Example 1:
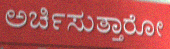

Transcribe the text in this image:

ಅರ್ಚಿಸುತ್ತಾರೋ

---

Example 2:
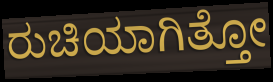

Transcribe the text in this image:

ರುಚಿಯಾಗಿತ್ತೋ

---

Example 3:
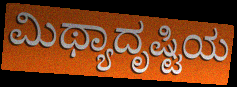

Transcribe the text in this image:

ಮಿಥ್ಯಾದೃಷ್ಟಿಯ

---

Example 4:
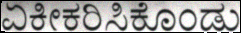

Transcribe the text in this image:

ಏಕೀಕರಿಸಿಕೊಂಡು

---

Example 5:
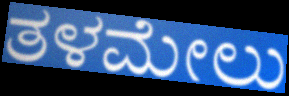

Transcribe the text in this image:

ತಳಮೇಲು